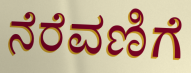
ನೆರೆವಣಿಗೆ